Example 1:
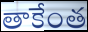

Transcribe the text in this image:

తాకేంత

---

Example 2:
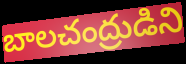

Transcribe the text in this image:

బాలచంద్రుడిని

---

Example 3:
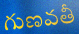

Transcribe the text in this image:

గుణవతీ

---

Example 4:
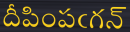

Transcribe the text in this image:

దీపింపఁగన్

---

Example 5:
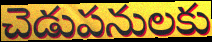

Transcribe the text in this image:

చెడుపనులకు